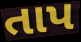
તાપ